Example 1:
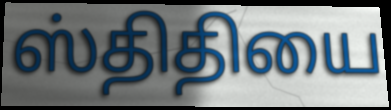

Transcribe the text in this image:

ஸ்திதியை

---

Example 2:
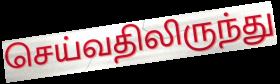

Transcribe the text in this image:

செய்வதிலிருந்து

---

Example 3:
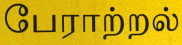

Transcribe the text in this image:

பேராற்றல்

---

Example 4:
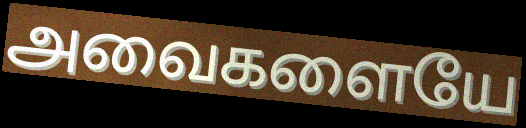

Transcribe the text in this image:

அவைகளையே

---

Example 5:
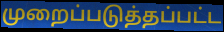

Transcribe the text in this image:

முறைப்படுத்தப்பட்ட